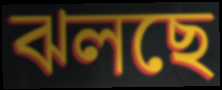
ঝলছে